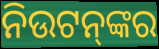
ନିଉଟନ୍‌ଙ୍କର